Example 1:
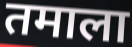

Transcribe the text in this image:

तमाला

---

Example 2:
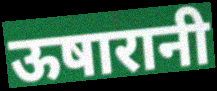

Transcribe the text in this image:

ऊषारानी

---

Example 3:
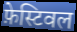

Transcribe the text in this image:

फ़ेस्टिवल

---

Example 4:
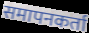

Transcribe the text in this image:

समापनकर्ता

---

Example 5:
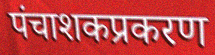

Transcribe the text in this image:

पंचाशकप्रकरण